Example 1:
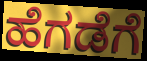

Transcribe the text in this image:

ಹೆಗಡೆಗೆ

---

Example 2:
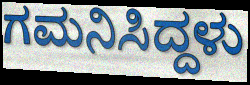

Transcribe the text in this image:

ಗಮನಿಸಿದ್ದಳು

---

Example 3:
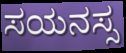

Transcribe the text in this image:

ಸಯನಸ್ಸ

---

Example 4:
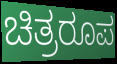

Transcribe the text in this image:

ಚಿತ್ರರೂಪ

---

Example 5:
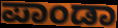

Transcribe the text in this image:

ಪಾಂಡಾ